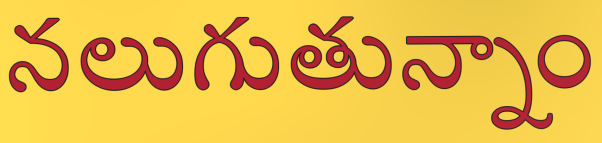
నలుగుతున్నాం